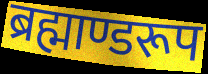
ब्रह्माण्डरूप